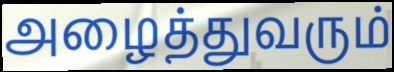
அழைத்துவரும்